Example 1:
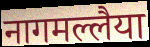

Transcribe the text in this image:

नागमल्लैया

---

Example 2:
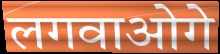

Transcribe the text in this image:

लगवाओगे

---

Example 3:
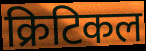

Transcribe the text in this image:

क्रिटिकल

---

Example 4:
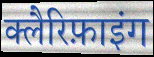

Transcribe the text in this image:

क्लैरिफ़ाइंग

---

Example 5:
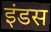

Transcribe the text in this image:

इंडस